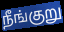
நீங்குறு